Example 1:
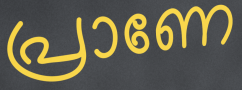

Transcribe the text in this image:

പ്രാണേ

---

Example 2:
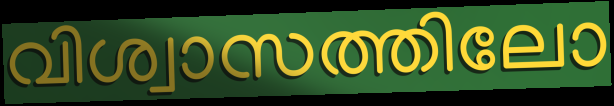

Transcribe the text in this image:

വിശ്വാസത്തിലോ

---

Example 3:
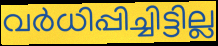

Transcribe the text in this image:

വർധിപ്പിച്ചിട്ടില്ല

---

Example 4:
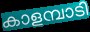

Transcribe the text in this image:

കാളമ്പാടി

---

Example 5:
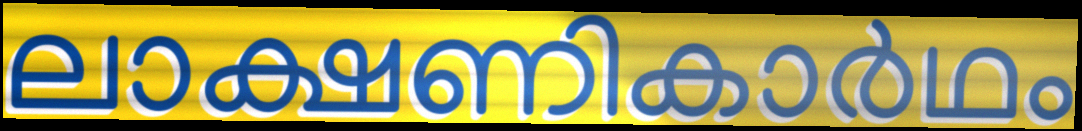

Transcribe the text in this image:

ലാക്ഷണികാർഥം